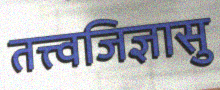
तत्त्वजिज्ञासु